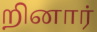
றினார்